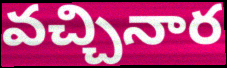
వచ్చినార